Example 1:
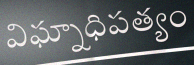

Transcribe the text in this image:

విఘ్నాధిపత్యం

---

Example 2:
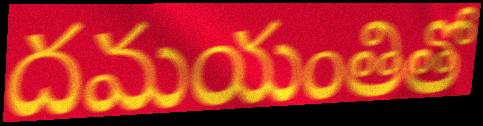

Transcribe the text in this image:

దమయంతితో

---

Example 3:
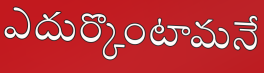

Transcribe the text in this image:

ఎదుర్కొంటామనే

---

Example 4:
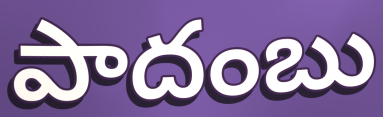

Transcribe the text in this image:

పాదంబు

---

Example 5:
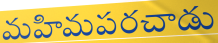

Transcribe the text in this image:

మహిమపరచాడు